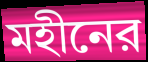
মহীনের